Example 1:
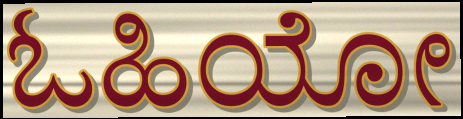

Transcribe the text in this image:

ಓಹಿಯೋ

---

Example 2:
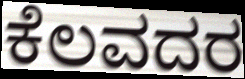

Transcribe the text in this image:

ಕೆಲವದರ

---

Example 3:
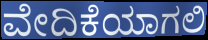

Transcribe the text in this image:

ವೇದಿಕೆಯಾಗಲಿ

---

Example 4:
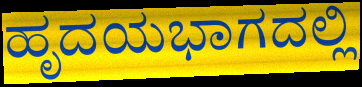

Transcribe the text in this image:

ಹೃದಯಭಾಗದಲ್ಲಿ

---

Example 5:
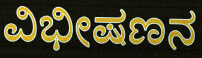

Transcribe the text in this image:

ವಿಭೀಷಣನ